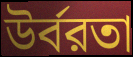
উর্বরতা